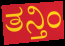
ತನ್ತಿಂ